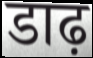
डाढ़